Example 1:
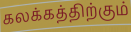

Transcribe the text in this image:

கலக்கத்திற்கும்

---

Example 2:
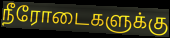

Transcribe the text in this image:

நீரோடைகளுக்கு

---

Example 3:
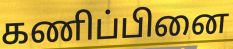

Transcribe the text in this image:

கணிப்பினை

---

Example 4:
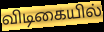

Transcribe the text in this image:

விடிகையில்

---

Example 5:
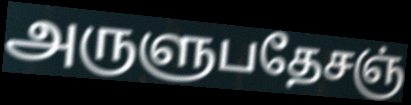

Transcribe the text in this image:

அருளுபதேசஞ்